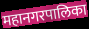
महानगरपालिका